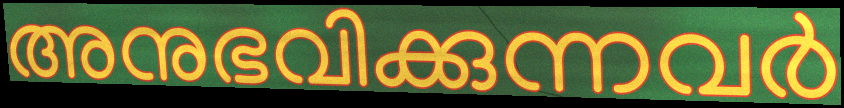
അനുഭവിക്കുന്നവർ